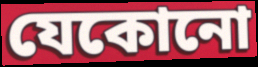
যেকোনো